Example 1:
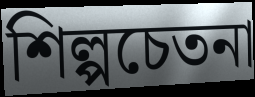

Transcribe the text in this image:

শিল্পচেতনা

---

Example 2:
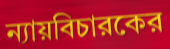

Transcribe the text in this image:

ন্যায়বিচারকের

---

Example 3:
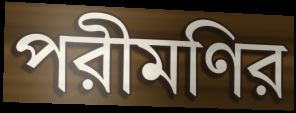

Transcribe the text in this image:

পরীমণির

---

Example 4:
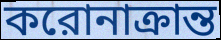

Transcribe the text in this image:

করোনাক্রান্ত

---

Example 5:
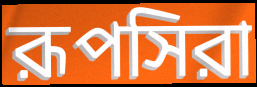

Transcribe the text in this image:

রূপসিরা